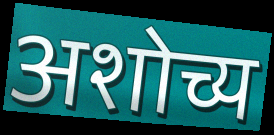
अशोच्य